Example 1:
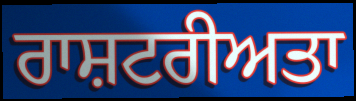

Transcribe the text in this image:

ਰਾਸ਼ਟਰੀਅਤਾ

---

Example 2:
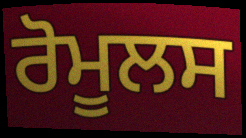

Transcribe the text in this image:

ਰੋਮੂਲਸ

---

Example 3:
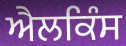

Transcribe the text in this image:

ਐਲਕਿੰਸ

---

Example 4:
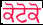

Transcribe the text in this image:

ਕੋਟੋਕੋ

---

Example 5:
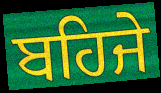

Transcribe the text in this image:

ਬਹਿਜੇ